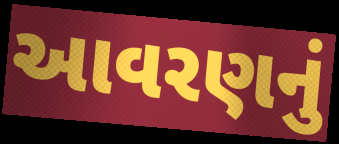
આવરણનું